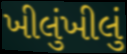
ખીલુંખીલું